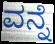
ವನ್ನೆ